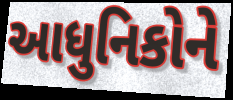
આધુનિકોને